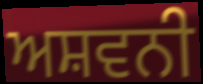
ਅਸ਼ਵਨੀ